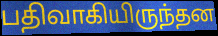
பதிவாகியிருந்தன